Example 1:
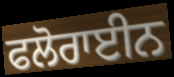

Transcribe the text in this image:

ਫਲੋਰਾਈਨ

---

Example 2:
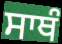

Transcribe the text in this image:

ਸਾਥੰ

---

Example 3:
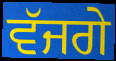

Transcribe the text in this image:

ਵੱਜਗੇ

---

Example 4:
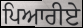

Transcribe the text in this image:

ਪਿਆਰੀਏ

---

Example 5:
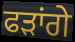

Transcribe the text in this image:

ਫੜਾਂਗੇ